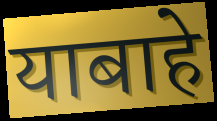
याबाहे